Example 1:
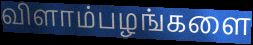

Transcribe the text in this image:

விளாம்பழங்களை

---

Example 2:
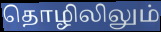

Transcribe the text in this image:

தொழிலிலும்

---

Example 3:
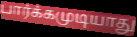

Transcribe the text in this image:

பார்க்கமுடியாது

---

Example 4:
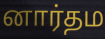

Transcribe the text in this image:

னார்தம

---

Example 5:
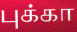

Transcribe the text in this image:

புக்கா